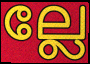
ല്ലേ